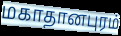
மகாதானபுரம்